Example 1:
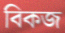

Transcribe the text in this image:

বিকজ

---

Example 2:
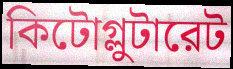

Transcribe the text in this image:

কিটোগ্লুটারেট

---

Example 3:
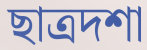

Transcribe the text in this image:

ছাত্রদশা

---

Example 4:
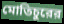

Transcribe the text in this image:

মোতিচুরের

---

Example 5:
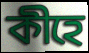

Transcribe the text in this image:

কীহে